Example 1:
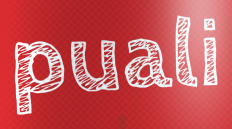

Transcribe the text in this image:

puali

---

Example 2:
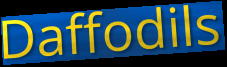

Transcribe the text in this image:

Daffodils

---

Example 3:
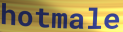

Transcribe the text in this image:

hotmale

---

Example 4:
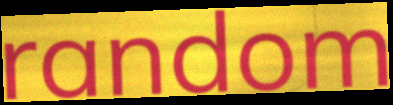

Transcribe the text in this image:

random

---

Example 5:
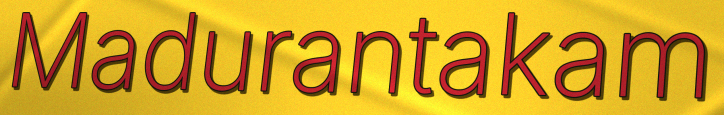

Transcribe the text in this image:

Madurantakam